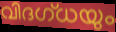
വിദഗ്ധയും